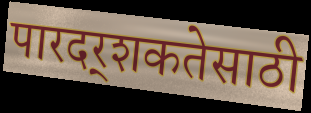
पारदर्शकतेसाठी